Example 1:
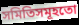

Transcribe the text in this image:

সমিতিসমূহতো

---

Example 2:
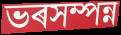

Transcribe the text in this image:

ভৰসম্পন্ন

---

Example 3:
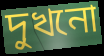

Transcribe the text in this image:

দুখনো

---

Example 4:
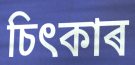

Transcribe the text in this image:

চিৎকাৰ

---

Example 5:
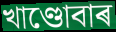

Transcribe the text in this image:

খাণ্ডোবাৰ